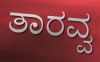
ತಾರವ್ವ